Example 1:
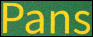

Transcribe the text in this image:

Pans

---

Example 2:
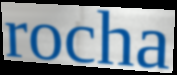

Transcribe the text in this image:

rocha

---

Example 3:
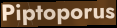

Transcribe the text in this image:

Piptoporus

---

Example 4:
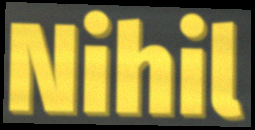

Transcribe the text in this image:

Nihil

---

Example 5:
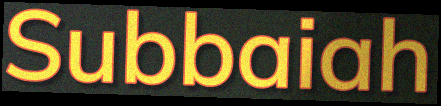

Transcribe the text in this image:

Subbaiah